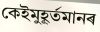
কেইমুহূৰ্তমানৰ